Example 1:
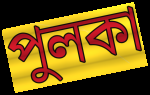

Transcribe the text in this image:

পুলকা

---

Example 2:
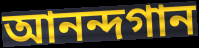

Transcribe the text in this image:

আনন্দগান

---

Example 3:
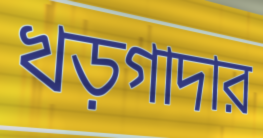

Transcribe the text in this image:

খড়গাদার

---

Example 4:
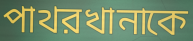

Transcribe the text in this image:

পাথরখানাকে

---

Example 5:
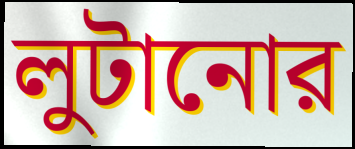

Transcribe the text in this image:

লুটানোর